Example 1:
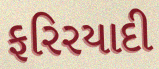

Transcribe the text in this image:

ફરિરયાદી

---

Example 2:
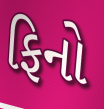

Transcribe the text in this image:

ફિનો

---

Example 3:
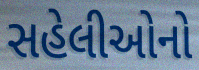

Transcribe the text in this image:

સહેલીઓનો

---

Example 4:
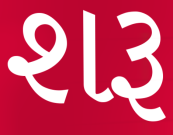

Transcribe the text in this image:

શરૂ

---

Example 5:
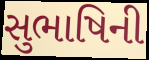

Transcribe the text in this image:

સુભાષિની